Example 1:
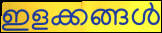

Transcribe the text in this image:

ഇളക്കങ്ങൾ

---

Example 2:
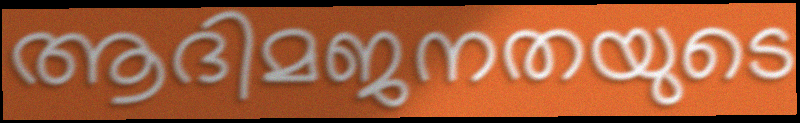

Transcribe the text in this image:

ആദിമജനതയുടെ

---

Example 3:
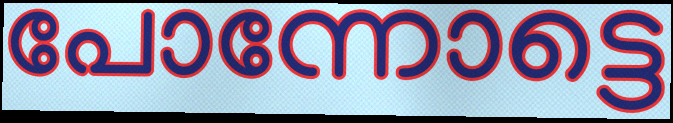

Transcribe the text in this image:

പോന്നോട്ടെ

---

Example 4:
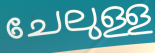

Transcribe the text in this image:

ചേലുള്ള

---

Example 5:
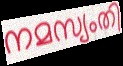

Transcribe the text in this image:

നമസ്യംതി